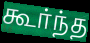
கூர்ந்த